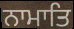
ਨਾਮਾਤਿ